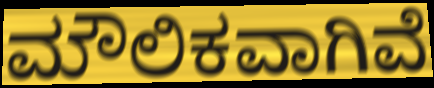
ಮೌಲಿಕವಾಗಿವೆ